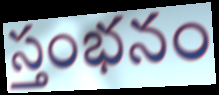
స్తంభనం